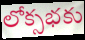
లోక్సభకు